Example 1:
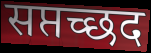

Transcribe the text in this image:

सप्तच्छद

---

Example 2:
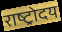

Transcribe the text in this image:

राष्ट्रोदय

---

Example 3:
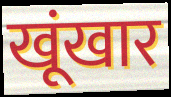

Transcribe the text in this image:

खूंखार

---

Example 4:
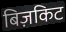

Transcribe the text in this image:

बिज़किट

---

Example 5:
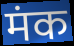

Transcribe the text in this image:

मंक